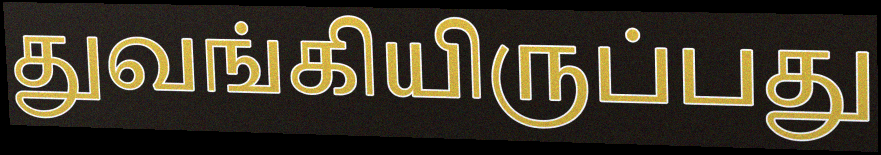
துவங்கியிருப்பது